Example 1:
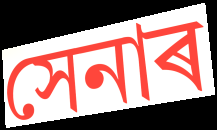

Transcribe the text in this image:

সেনাৰ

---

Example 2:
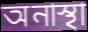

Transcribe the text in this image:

অনাস্থা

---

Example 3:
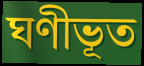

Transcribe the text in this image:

ঘণীভূত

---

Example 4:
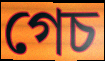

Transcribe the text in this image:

গেচ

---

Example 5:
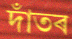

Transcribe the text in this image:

দাঁতৰ